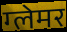
ग्लेमर